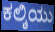
ಕಲ್ಕಿಯು